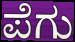
ಪೆಗು